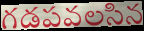
గడపవలసిన